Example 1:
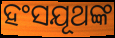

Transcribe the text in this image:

ହଂସଯୂଥଙ୍କ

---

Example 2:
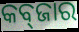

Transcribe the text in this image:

କବ୍‍ଜାର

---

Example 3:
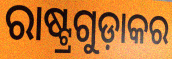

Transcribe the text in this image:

ରାଷ୍ଟ୍ରଗୁଡ଼ାକର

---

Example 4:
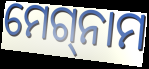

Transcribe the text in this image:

ମେଗ୍‌ନାମ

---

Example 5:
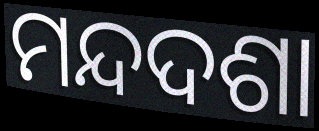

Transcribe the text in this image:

ମନ୍ଦଦଶା